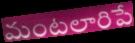
మంటలారిపే